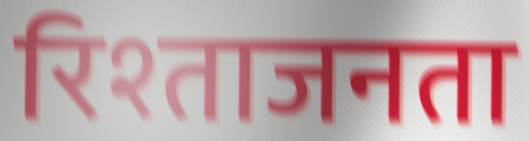
रिश्ताजनता